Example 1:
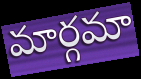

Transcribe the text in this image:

మార్గమా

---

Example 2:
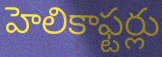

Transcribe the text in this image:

హెలికాఫ్టర్లు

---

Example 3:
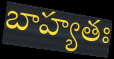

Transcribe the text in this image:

బాహ్యతః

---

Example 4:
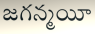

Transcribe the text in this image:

జగన్మయీ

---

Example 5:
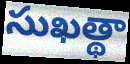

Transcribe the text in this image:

సుఖత్థా